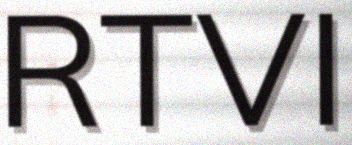
RTVI